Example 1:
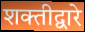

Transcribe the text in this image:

शक्तीद्वारे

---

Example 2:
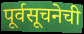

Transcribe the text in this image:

पूर्वसूचनेची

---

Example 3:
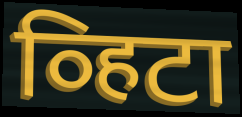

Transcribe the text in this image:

व्हिटा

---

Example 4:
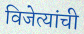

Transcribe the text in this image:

विजेत्यांची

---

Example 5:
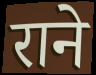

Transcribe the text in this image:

राने